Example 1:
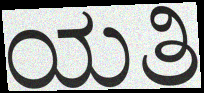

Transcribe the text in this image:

ಯತಿ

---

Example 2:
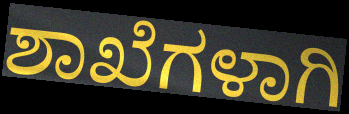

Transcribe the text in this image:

ಶಾಖೆಗಳಾಗಿ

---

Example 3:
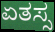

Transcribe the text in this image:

ಏತಸ್ಸ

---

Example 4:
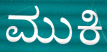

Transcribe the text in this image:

ಮುಕಿ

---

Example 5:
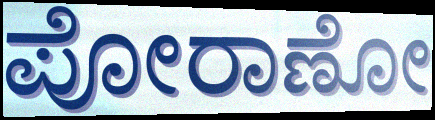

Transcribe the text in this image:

ಪೋರಾಣೋ